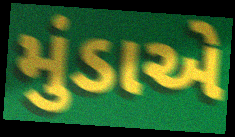
મુંડાએ